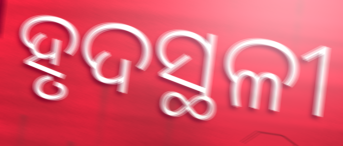
ହୃଦସ୍ଥଳୀ